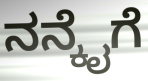
ನನ್ಕೈಗೆ